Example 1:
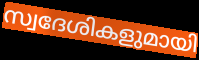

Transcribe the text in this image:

സ്വദേശികളുമായി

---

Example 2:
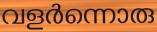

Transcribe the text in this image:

വളർന്നൊരു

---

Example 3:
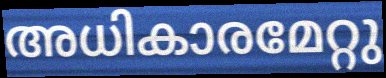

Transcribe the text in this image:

അധികാരമേറ്റു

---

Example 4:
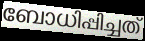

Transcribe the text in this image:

ബോധിപ്പിച്ചത്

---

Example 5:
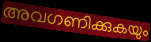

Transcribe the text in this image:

അവഗണിക്കുകയും